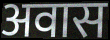
अवास